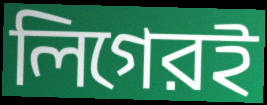
লিগেরই